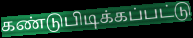
கண்டுபிடிக்கப்பட்டு